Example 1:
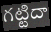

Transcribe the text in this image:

గట్టిదా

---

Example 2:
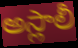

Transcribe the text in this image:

అస్లాలీ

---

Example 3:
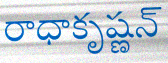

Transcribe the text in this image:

రాధాకృష్ణన్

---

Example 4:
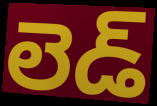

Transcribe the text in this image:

లెడ్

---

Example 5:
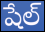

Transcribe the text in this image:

షేల్